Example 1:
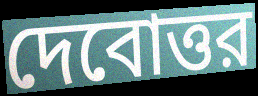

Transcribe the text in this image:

দেবোত্তর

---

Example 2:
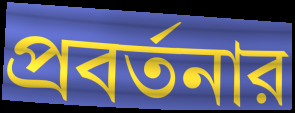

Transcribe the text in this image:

প্রবর্তনার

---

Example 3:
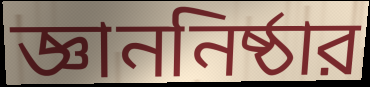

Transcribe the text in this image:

জ্ঞাননিষ্ঠার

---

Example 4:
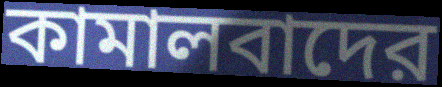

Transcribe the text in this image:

কামালবাদের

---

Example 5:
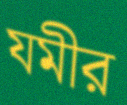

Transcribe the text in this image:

যমীর